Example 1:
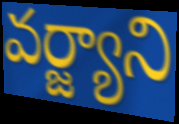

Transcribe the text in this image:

వర్జ్యాని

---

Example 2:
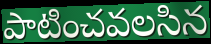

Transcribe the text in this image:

పాటించవలసిన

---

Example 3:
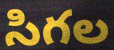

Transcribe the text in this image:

సిగల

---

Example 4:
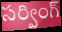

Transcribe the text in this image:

సర్వింగ్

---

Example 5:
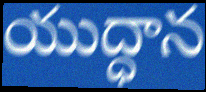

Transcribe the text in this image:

యుద్ధాన